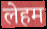
लेहम